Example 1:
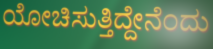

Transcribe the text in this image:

ಯೋಚಿಸುತ್ತಿದ್ದೇನೆಂದು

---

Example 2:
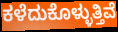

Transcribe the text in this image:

ಕಳೆದುಕೊಳ್ಳುತ್ತಿವೆ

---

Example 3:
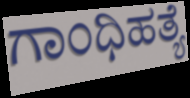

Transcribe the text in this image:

ಗಾಂಧಿಹತ್ಯೆ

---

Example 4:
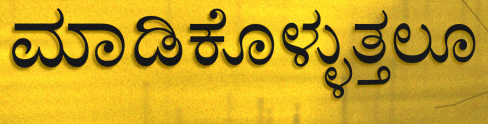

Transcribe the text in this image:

ಮಾಡಿಕೊಳ್ಳುತ್ತಲೂ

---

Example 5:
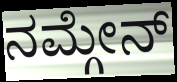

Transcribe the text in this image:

ನಮ್ಗೇನ್